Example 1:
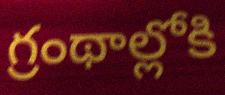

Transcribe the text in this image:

గ్రంథాల్లోకి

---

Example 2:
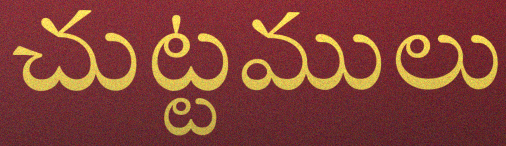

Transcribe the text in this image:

చుట్టములు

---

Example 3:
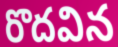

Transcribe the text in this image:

రొదవిన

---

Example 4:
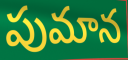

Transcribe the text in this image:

పుమాన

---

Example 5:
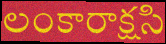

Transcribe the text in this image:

లంకారాక్షసి